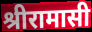
श्रीरामासी